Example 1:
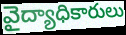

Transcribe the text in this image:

వైద్యాధికారులు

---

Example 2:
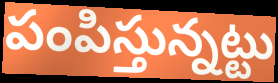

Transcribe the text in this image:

పంపిస్తున్నట్టు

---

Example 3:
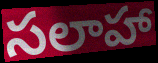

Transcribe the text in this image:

సలాహా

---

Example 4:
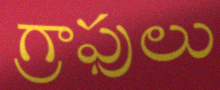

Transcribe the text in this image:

గ్రాఫులు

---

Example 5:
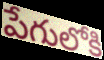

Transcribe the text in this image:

పేగులోకి